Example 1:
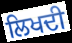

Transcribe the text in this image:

ਲਿਖਦੀ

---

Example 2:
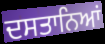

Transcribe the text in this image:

ਦਸਤਾਨਿਆਂ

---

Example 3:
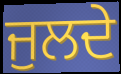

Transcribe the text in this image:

ਜੁਲਦੇ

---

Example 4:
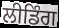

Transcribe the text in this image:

ਲੀਡਿੰਗ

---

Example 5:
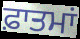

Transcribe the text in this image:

ਫ਼ਾਤਮਾਂ